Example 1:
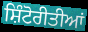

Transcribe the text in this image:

ਸ਼ਿੰਟੋਰੀਤੀਆਂ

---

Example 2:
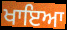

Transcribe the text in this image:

ਖਾਇਆ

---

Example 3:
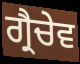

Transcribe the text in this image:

ਗ੍ਰੈਚੇਵ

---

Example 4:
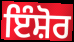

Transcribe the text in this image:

ਇੰਸ਼ੋਰ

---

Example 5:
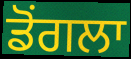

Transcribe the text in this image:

ਡੋਂਗਲਾ